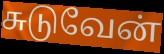
சுடுவேன்